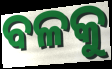
ବଳକୁ